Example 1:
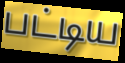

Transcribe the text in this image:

பட்டிய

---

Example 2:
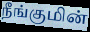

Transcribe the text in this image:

நீங்குமின்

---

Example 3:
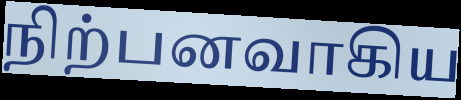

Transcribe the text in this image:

நிற்பனவாகிய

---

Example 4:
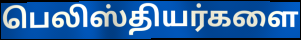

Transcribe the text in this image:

பெலிஸ்தியர்களை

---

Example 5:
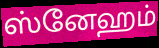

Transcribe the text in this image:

ஸ்னேஹம்